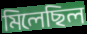
মিলেছিল